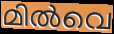
മിൽവെ